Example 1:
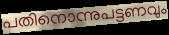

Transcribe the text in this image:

പതിനൊന്നുപട്ടണവും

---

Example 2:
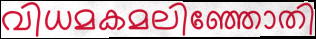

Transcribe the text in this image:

വിധമകമലിഞ്ഞോതി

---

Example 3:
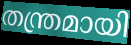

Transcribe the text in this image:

തന്ത്രമായി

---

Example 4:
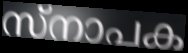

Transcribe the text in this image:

സ്നാപക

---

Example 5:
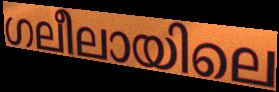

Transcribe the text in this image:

ഗലീലായിലെ